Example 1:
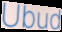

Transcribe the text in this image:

Ubud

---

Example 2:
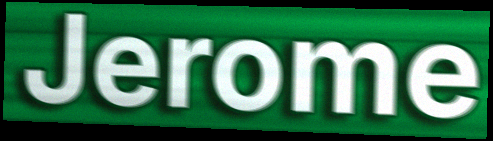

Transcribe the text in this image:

Jerome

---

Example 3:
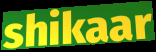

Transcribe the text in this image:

shikaar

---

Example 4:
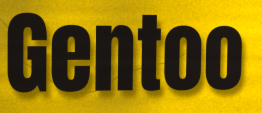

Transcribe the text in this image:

Gentoo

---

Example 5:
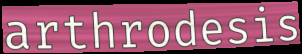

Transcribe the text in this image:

arthrodesis